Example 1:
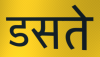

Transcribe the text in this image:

डसते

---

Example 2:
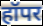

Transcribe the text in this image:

हॉपर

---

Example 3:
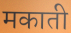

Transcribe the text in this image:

मकाती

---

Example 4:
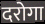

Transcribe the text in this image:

दरोगा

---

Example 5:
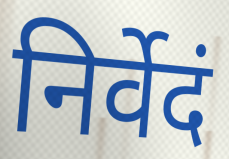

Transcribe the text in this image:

निर्वेदं